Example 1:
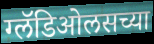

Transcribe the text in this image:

ग्लॅडिओलसच्या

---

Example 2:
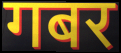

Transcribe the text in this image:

गबर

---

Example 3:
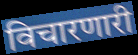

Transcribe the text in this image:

विचारणारी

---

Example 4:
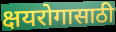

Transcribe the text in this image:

क्षयरोगासाठी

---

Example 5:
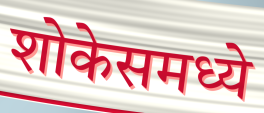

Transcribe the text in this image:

शोकेसमध्ये